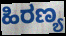
ಹಿರಣ್ಯ